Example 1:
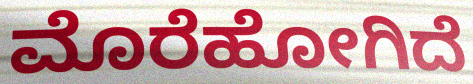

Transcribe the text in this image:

ಮೊರೆಹೋಗಿದೆ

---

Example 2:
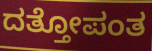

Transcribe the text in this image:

ದತ್ತೋಪಂತ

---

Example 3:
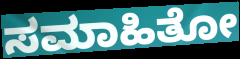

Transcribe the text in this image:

ಸಮಾಹಿತೋ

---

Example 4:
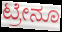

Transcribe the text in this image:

ಟ್ರೇನೂ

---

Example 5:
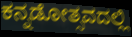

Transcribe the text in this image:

ಕನ್ನಡೋತ್ಸವದಲ್ಲಿ